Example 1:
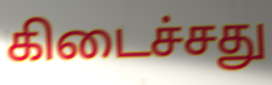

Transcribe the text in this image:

கிடைச்சது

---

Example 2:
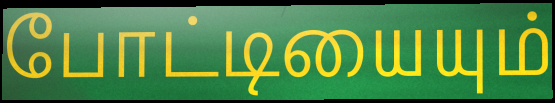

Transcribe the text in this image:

போட்டியையும்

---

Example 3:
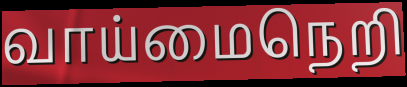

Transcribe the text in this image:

வாய்மைநெறி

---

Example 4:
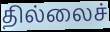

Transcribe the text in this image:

தில்லைச்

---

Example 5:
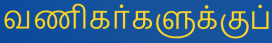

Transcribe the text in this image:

வணிகர்களுக்குப்